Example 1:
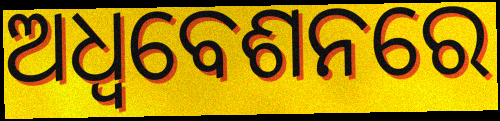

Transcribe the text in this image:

ଅଧ୍ଵବେଶନରେ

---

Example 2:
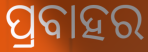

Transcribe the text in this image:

ପ୍ରବାହର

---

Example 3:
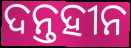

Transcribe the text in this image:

ଦନ୍ତହୀନ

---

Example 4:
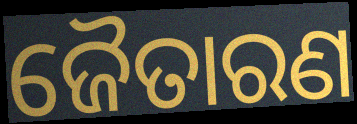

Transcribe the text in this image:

ଜୈତାରଣ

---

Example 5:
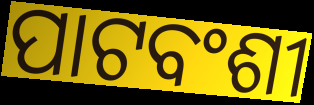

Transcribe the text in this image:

ପାଟବଂଶୀ